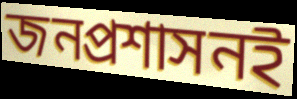
জনপ্রশাসনই